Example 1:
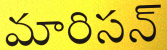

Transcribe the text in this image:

మారిసన్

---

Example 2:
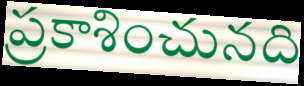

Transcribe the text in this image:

ప్రకాశించునది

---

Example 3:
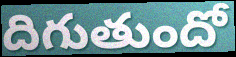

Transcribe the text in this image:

దిగుతుందో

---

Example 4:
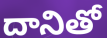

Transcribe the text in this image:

దానితో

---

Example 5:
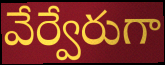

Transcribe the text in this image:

వేర్వేరుగా